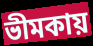
ভীমকায়